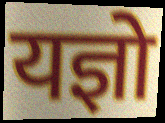
यज्ञो